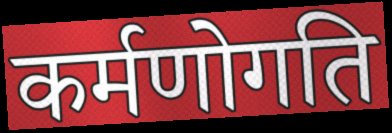
कर्मणोगति